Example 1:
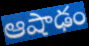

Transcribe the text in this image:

ఆషాఢం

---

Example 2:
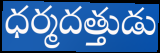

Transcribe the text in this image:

ధర్మదత్తుడు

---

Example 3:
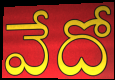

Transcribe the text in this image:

వేదో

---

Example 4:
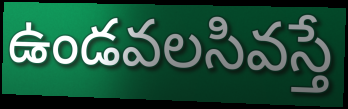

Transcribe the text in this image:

ఉండవలసివస్తే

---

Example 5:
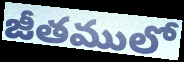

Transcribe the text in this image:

జీతములో